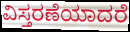
ವಿಸ್ತರಣೆಯಾದರೆ